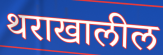
थराखालील